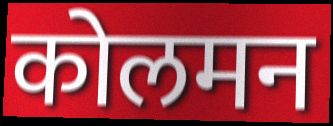
कोलमन